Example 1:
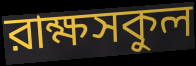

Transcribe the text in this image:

রাক্ষসকুল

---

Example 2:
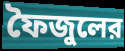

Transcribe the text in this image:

ফৈজুলের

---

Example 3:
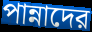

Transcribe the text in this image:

পান্নাদের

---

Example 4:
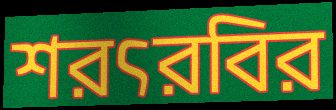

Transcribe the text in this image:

শরৎরবির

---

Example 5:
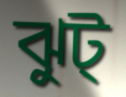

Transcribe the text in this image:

ঝুট্